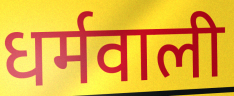
धर्मवाली